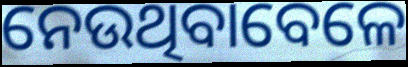
ନେଉଥିବାବେଳେ